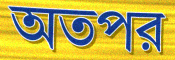
অতপর